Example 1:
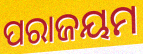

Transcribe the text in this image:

ପରାଜୟମ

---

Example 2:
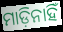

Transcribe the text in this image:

ମାଡ଼ିନାହିଁ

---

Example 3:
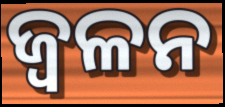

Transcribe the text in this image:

ଜ୍ଵଳନ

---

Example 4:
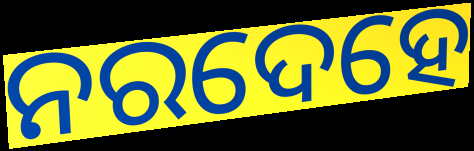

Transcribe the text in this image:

ନରଦେହେ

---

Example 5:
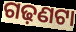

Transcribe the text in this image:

ଗଢ଼ଣଟା